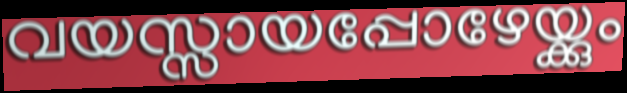
വയസ്സായപ്പോഴേയ്ക്കും